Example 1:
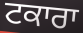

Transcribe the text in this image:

ਟਕਾਰਾ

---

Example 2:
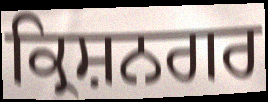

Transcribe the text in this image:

ਕ੍ਰਿਸ਼ਨਗਰ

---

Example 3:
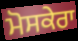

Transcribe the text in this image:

ਮੋਸਕੇਰਾ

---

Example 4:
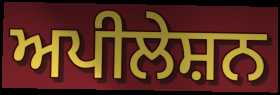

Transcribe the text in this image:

ਅਪੀਲੇਸ਼ਨ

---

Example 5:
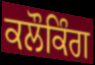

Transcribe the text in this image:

ਕਲੌਕਿੰਗ